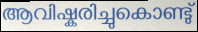
ആവിഷ്കരിച്ചുകൊണ്ടു്